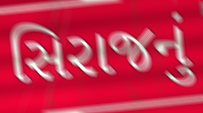
સિરાજનું